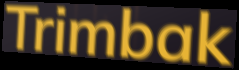
Trimbak